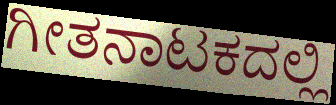
ಗೀತನಾಟಕದಲ್ಲಿ